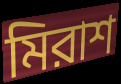
মিরাশ